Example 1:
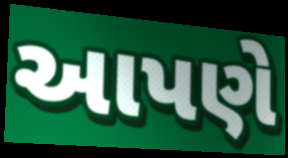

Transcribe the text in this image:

આપણે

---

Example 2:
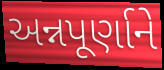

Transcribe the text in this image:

અન્નપૂર્ણાને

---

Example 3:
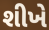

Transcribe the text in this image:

શીખે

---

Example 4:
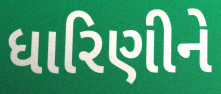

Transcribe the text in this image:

ધારિણીને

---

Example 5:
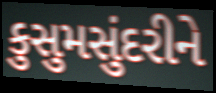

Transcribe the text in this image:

કુસુમસુંદરીને